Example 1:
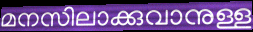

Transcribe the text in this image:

മനസിലാക്കുവാനുള്ള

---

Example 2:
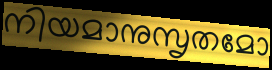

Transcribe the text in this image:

നിയമാനുസൃതമോ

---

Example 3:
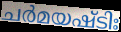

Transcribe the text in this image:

ചർമയഷ്ടിഃ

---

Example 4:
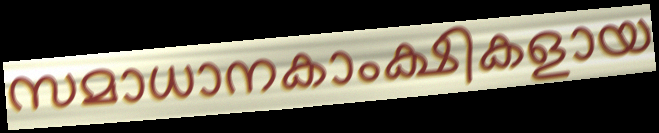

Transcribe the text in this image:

സമാധാനകാംക്ഷികളായ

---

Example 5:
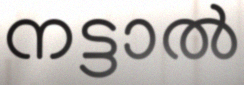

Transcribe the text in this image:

നട്ടാൽ